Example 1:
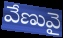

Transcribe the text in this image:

వేణువై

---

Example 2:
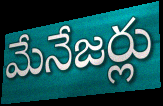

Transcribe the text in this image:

మేనేజర్లు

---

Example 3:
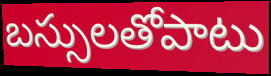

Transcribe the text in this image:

బస్సులతోపాటు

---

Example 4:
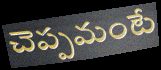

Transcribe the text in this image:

చెప్పమంటే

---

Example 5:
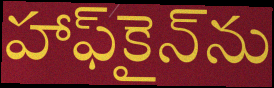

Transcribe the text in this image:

హాఫ్‌కైన్‌ను